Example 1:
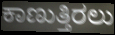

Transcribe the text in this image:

ಕಾಣುತ್ತಿರಲು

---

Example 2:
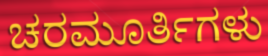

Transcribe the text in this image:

ಚರಮೂರ್ತಿಗಳು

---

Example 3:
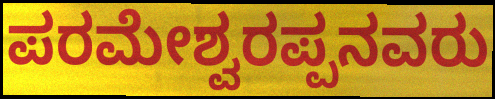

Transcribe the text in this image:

ಪರಮೇಶ್ವರಪ್ಪನವರು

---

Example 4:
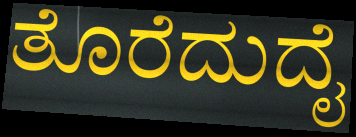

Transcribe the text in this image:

ತೊರೆದುದೈ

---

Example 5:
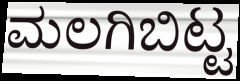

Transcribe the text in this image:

ಮಲಗಿಬಿಟ್ಟ